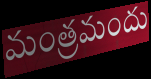
మంత్రమందు